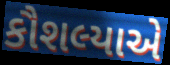
કૌશલ્યાએ